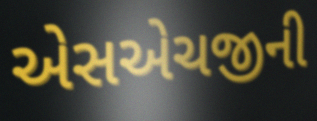
એસએચજીની